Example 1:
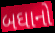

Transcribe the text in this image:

બઘાનો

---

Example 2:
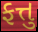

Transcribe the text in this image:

ફત્તુ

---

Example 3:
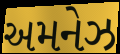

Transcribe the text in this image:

અમનેઝ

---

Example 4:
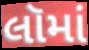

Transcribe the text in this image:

લૉમાં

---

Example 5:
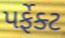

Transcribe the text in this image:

પર્ફેક્ટ